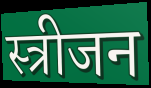
स्त्रीजन